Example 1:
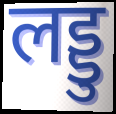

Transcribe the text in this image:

लड्डु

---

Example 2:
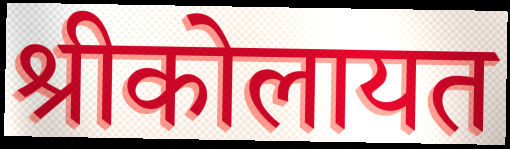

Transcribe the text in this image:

श्रीकोलायत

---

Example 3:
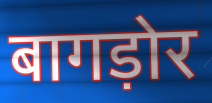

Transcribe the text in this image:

बागड़ोर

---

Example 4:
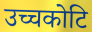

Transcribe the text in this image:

उच्चकोटि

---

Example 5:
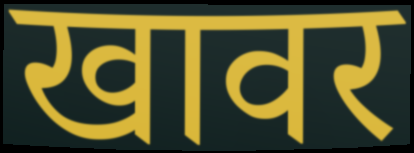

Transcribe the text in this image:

खावर